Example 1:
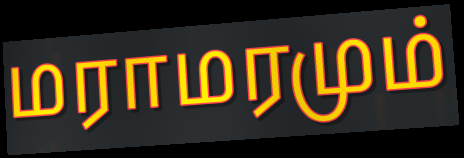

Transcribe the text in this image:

மராமரமும்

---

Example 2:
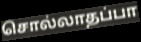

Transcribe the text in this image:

சொல்லாதப்பா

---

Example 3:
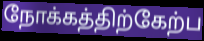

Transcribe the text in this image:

நோக்கத்திற்கேற்ப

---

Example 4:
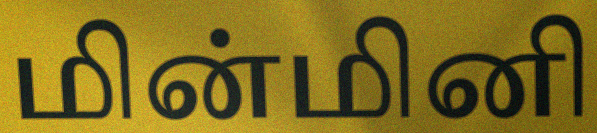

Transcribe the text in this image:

மின்மினி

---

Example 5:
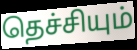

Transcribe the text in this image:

தெச்சியும்